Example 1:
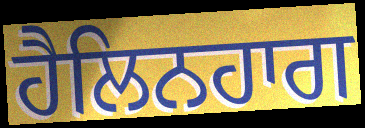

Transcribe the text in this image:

ਹੈਲਿਨਹਾਗ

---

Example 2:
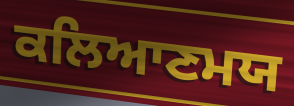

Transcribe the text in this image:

ਕਲਿਆਣਮਯ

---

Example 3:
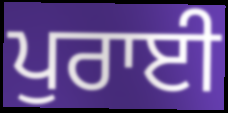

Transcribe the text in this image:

ਪੁਰਾਈ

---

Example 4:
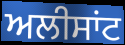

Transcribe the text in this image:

ਅਲੀਸਾਂਟ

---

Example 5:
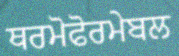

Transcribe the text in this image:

ਥਰਮੋਫੋਰਮੇਬਲ